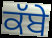
ਕੱਬੇ